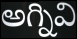
అగ్నివి